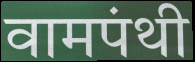
वामपंथी